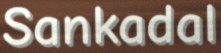
Sankadal